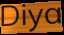
Diya